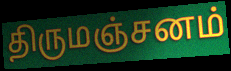
திருமஞ்சனம்